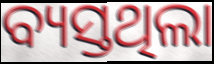
ବ୍ୟସ୍ତଥିଲା